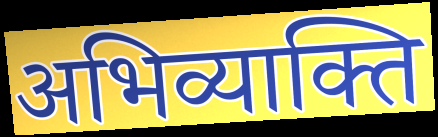
अभिव्याक्ति